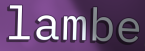
lambe